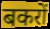
बकरों